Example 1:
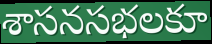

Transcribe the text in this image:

శాసనసభలకూ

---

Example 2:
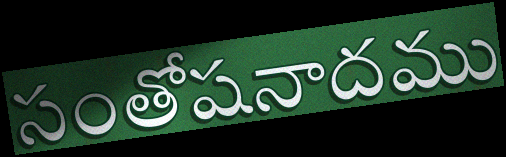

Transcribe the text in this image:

సంతోషనాదము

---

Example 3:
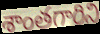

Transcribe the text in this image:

శాంతగారిని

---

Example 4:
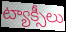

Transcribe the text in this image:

ట్యాక్సీలు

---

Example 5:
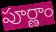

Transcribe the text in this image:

పూర్ణాం